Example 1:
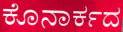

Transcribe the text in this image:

ಕೊನಾರ್ಕದ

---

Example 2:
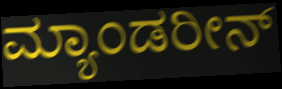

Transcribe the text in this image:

ಮ್ಯಾಂಡರೀನ್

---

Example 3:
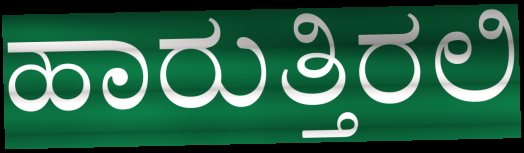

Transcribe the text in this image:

ಹಾರುತ್ತಿರಲಿ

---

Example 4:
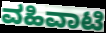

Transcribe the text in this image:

ವಹಿವಾಟಿ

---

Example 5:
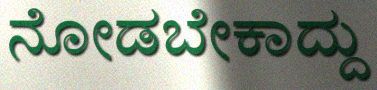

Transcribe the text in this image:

ನೋಡಬೇಕಾದ್ದು